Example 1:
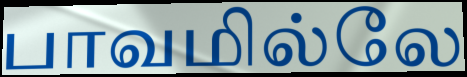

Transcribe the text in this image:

பாவமில்லே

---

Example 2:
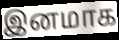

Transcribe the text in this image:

இனமாக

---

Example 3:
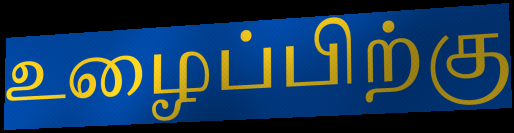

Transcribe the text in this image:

உழைப்பிற்கு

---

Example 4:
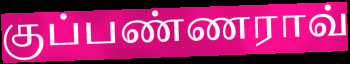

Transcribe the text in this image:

குப்பண்ணராவ்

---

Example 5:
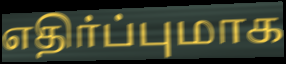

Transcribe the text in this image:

எதிர்ப்புமாக